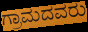
ಗ್ರಾಮದವರು